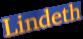
Lindeth